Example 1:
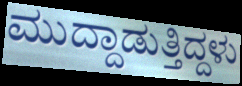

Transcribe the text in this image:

ಮುದ್ದಾಡುತ್ತಿದ್ದಳು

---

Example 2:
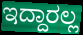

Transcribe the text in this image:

ಇದ್ದಾರಲ್ಲ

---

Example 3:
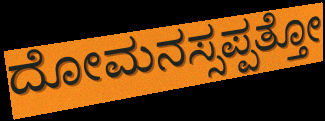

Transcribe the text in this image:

ದೋಮನಸ್ಸಪ್ಪತ್ತೋ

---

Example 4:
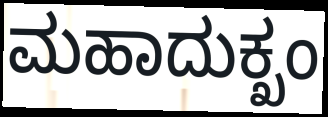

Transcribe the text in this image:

ಮಹಾದುಕ್ಖಂ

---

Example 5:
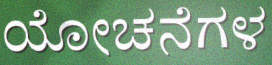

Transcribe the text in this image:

ಯೋಚನೆಗಳ